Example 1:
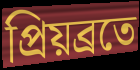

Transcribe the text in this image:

প্ৰিয়ব্ৰতে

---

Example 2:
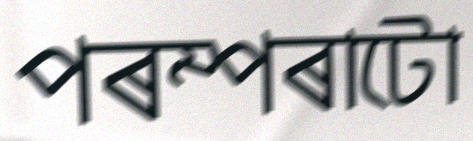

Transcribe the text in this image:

পৰম্পৰাটো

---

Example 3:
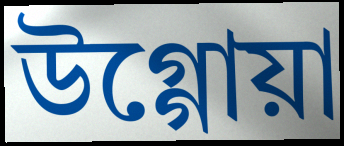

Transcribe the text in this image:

উগ্গোয়া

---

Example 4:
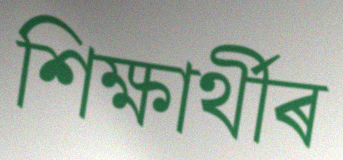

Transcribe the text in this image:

শিক্ষাৰ্থীৰ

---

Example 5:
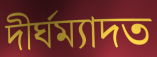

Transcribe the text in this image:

দীৰ্ঘম্যাদত